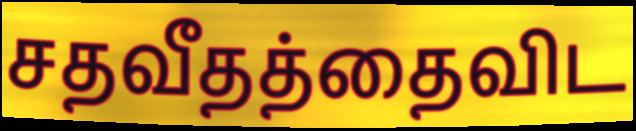
சதவீதத்தைவிட